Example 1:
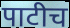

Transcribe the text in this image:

पाटीच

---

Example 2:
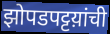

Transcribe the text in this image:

झोपडपट्टय़ांची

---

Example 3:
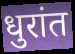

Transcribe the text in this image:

धुरांत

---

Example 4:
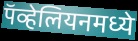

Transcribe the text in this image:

पॅव्हेलियनमध्ये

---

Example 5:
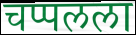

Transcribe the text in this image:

चप्पलला